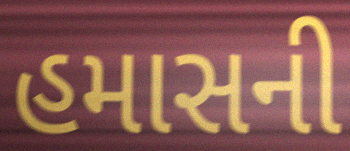
હમાસની